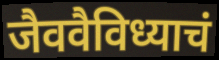
जैववैविध्याचं